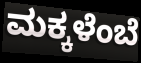
ಮಕ್ಕಳೆಂಬೆ